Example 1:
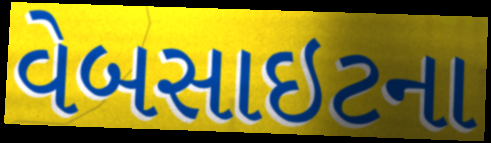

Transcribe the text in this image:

વેબસાઇટના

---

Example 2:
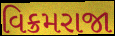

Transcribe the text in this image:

વિક્રમરાજા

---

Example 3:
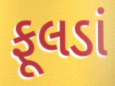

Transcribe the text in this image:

ફૂલડાં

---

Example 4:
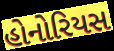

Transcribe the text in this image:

હોનોરિયસ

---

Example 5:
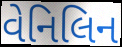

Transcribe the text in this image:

વેનિલિન